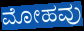
ಮೋಹವು